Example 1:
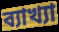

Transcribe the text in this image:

ব্যাখ্যা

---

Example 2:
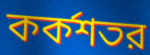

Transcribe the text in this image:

কর্কশতর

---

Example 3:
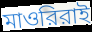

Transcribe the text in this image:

মাওরিরাই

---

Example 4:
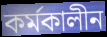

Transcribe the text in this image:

কর্মকালীন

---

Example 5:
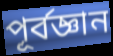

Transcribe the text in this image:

পূর্বজ্ঞান